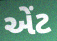
એંટ